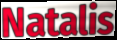
Natalis